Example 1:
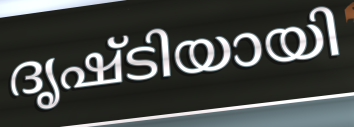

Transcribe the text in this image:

ദൃഷ്ടിയായി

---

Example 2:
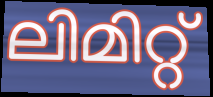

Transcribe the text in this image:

ലിമിറ്റ്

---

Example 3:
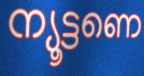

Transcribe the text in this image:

ന്യൂട്ടണെ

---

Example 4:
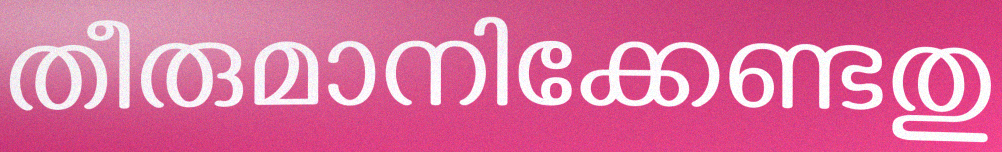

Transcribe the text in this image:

തീരുമാനിക്കേണ്ടതു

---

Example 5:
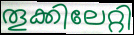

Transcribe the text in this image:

തൂക്കിലേറ്റി